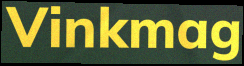
Vinkmag